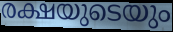
രക്ഷയുടെയും